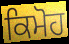
ਕਿਮੋਹ